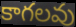
కాగలవు